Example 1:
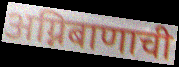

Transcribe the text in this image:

अग्निबाणाची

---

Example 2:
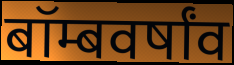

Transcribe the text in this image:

बॉम्बवर्षांव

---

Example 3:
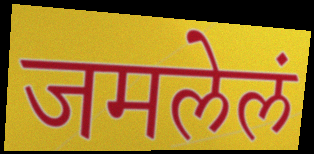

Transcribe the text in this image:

जमलेलं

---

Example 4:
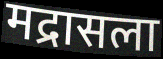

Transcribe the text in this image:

मद्रासला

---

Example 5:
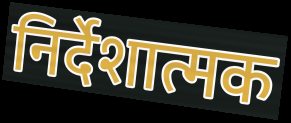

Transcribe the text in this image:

निर्देशात्मक